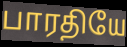
பாரதியே